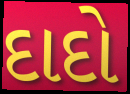
દાદો